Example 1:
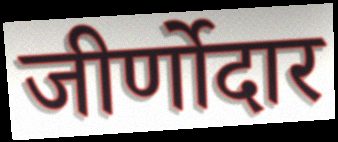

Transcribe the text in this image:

जीर्णोदार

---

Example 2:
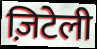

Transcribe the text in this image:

ज़िटेली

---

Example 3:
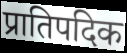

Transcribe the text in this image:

प्रातिपदिक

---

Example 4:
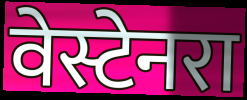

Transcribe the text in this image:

वेस्टेनरा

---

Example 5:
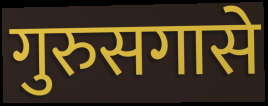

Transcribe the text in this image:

गुरुसगासे